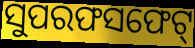
ସୁପରଫସଫେଟ୍